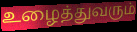
உழைத்துவரும்